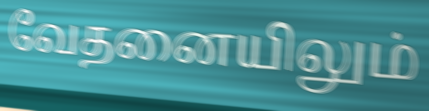
வேதனையிலும்